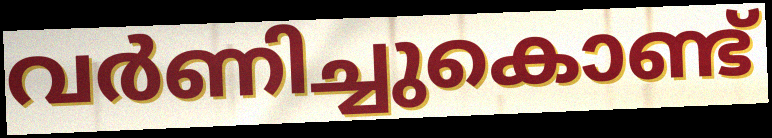
വർണിച്ചുകൊണ്ട്